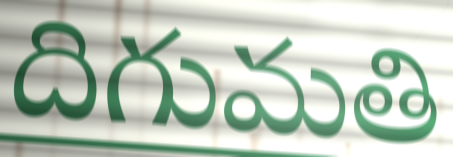
దిగుమతి